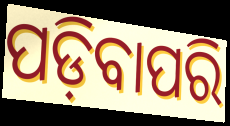
ପଡ଼ିବାପରି